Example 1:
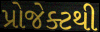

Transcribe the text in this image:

પ્રોજેક્ટથી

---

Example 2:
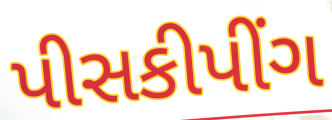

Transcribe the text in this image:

પીસકીપીંગ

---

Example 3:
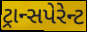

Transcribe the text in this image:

ટ્રાન્સપેરેન્ટ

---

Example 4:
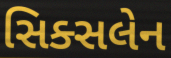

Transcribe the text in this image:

સિક્સલેન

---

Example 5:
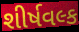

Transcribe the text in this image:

શીર્ષવલ્ક